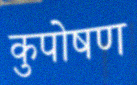
कुपोषण